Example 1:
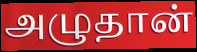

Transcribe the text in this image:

அழுதான்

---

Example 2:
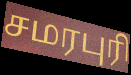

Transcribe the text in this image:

சமரபுரி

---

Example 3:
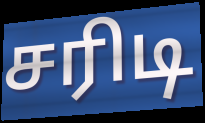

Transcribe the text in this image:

சரிடி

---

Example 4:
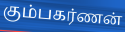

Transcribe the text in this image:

கும்பகர்ணன்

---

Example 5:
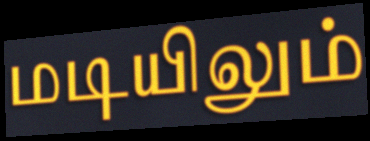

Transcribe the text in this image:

மடியிலும்